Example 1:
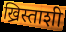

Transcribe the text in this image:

ख्रिस्ताशी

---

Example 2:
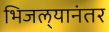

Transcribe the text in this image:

भिजल्यानंतर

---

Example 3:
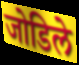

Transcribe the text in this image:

जोडिले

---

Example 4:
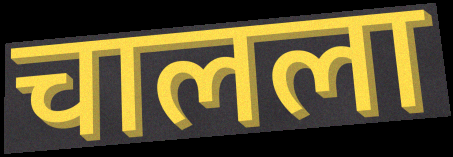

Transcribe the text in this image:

चालला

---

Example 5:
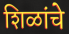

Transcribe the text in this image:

शिळांचे